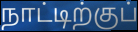
நாட்டிற்குப்